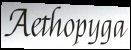
Aethopyga